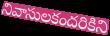
నివాసులకందరికిని